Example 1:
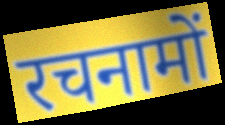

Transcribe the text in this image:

रचनामों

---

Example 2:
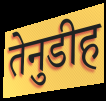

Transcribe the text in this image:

तेनुडीह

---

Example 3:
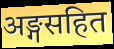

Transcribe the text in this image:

अङ्गसहित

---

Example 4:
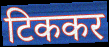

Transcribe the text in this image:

टिककर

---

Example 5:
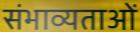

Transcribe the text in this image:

संभाव्यताओं